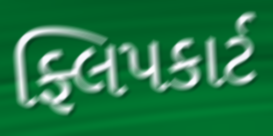
ફ્લિપકાર્ટ